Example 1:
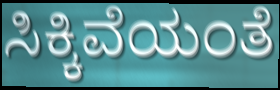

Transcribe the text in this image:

ಸಿಕ್ಕಿವೆಯಂತೆ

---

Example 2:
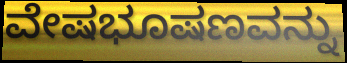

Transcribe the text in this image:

ವೇಷಭೂಷಣವನ್ನು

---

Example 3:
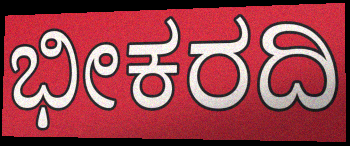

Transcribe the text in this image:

ಭೀಕರದಿ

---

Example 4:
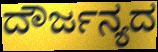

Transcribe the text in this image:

ದೌರ್ಜನ್ಯದ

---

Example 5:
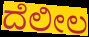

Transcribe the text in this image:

ದೆಲೀಲ